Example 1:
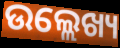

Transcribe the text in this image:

ଉଲ୍ଲେଖ୍ୟ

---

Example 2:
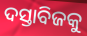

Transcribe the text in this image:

ଦସ୍ତାବିଜକୁ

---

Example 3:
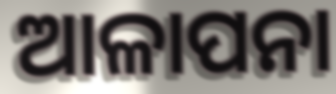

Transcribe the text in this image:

ଆଳାପନା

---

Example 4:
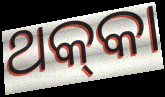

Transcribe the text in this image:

ଥକ୍‍କା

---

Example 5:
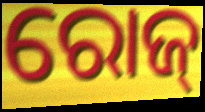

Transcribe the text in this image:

ରୋଜ୍